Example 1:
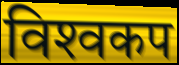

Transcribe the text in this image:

विश्‍वकप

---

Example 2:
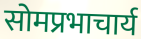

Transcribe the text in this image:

सोमप्रभाचार्य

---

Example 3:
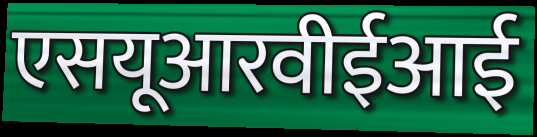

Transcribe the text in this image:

एसयूआरवीईआई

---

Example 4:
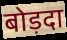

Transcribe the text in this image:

बोड़दा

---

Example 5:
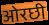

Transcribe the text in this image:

ओरछी